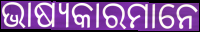
ଭାଷ୍ୟକାରମାନେ